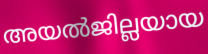
അയൽജില്ലയായ